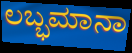
ಲಬ್ಭಮಾನಾ